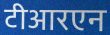
टीआरएन